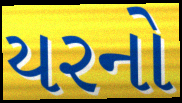
યરનો